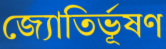
জ্যোতির্ভূষণ